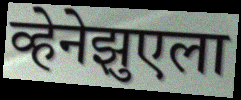
व्हेनेझुएला